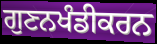
ਗੁਣਨਖੰਡੀਕਰਨ